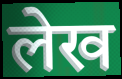
लेख